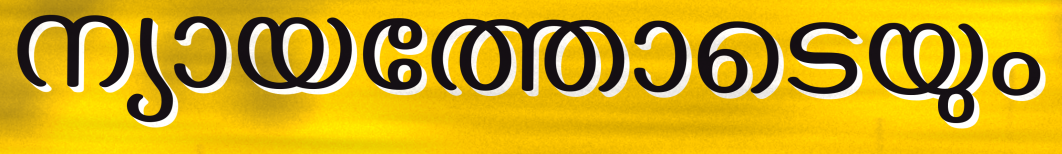
ന്യായത്തോടെയും